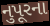
નુપૂરના